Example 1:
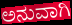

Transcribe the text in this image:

ಅನುವಾಗಿ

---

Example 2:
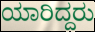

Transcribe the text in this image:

ಯಾರಿದ್ದರು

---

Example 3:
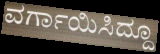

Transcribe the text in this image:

ವರ್ಗಾಯಿಸಿದ್ದೂ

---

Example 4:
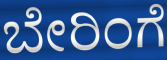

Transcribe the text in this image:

ಬೇರಿಂಗೆ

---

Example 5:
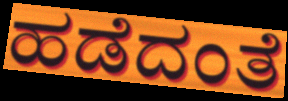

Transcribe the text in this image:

ಹಡೆದಂತೆ